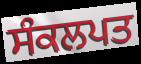
ਸੰਕਲਪਤ